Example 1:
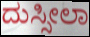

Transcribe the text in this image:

ದುಸ್ಸೀಲಾ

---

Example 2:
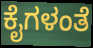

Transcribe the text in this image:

ಕೈಗಳಂತೆ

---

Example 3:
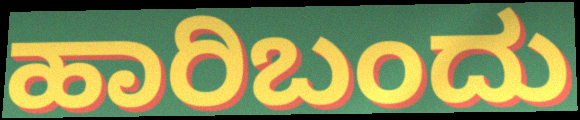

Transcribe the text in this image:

ಹಾರಿಬಂದು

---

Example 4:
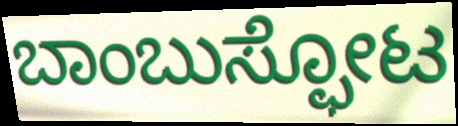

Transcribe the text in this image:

ಬಾಂಬುಸ್ಫೋಟ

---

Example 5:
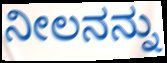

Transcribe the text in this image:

ನೀಲನನ್ನು